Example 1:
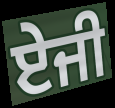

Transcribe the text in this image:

ਏਜੀ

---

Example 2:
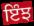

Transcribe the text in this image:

ਇੰਝ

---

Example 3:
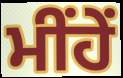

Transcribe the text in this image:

ਮੀਂਹੇਂ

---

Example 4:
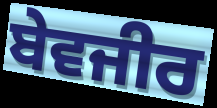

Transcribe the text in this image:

ਬੇਵਜੀਰ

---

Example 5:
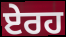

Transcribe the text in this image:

ਏਰਹ